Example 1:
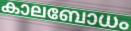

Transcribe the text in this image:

കാലബോധം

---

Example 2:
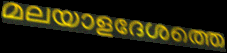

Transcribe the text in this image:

മലയാളദേശത്തെ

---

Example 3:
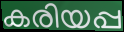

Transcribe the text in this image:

കരിയപ്പ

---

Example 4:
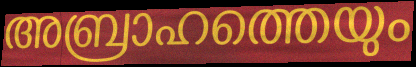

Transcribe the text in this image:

അബ്രാഹത്തെയും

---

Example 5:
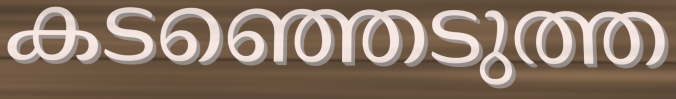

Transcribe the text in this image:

കടഞ്ഞെടുത്ത